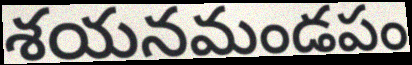
శయనమండపం